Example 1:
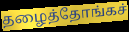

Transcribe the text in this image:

தழைத்தோங்கச்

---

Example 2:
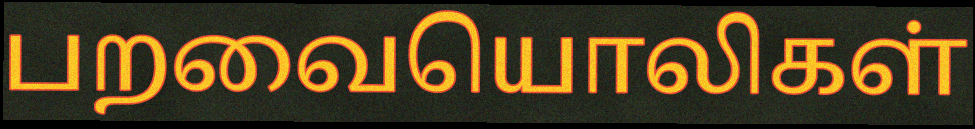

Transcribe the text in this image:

பறவையொலிகள்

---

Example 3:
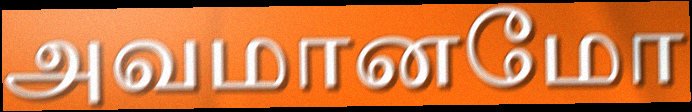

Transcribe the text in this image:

அவமானமோ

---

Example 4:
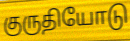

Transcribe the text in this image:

குருதியோடு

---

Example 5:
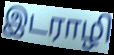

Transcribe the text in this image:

இடராழி